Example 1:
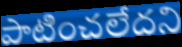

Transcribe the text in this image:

పాటించలేదని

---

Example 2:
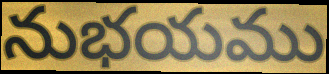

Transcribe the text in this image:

నుభయము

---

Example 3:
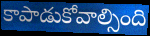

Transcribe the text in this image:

కాపాడుకోవాల్సింది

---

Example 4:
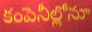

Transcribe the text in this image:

కంపెనీల్లోనూ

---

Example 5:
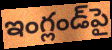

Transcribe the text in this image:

ఇంగ్లండ్‌పై